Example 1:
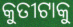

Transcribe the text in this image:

କୁତୀଟାକୁ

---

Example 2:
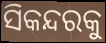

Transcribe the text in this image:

ସିକନ୍ଦରକୁ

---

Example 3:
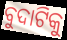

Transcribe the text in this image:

ବୁଦାଟିକୁ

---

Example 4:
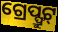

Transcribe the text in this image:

ଗ୍ରେପ୍ଫ୍ରୁଟ୍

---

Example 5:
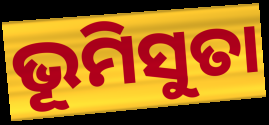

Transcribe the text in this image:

ଭୂମିସୁତା